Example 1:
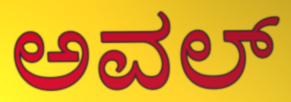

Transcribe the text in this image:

ಅವಲ್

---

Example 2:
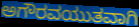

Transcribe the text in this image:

ಅಗೌರವಯುತವಾಗಿ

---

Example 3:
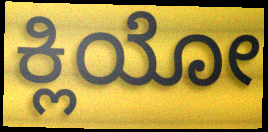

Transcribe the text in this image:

ಕ್ಲಿಯೋ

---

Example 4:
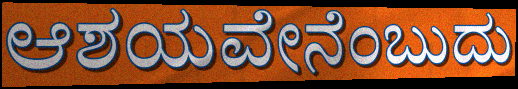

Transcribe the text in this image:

ಆಶಯವೇನೆಂಬುದು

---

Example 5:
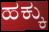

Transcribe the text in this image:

ಹಕ್ಕು